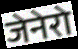
जेनेरो